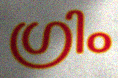
ഗ്രിം